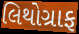
લિથોગ્રાફ